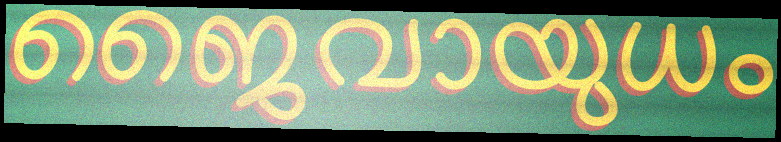
ജൈവായുധം